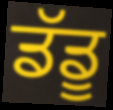
ਡੱਡੂ